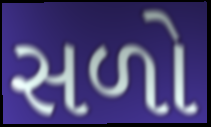
સળો